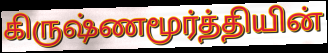
கிருஷ்ணமூர்த்தியின்